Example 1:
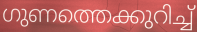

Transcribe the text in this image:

ഗുണത്തെക്കുറിച്ച്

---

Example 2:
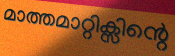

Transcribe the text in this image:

മാത്തമാറ്റിക്സിന്റെ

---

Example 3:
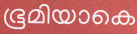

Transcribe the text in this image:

ഭൂമിയാകെ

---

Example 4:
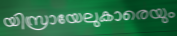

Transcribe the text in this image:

യിസ്രായേലുകാരെയും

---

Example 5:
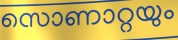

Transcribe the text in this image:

സൊണാറ്റയും